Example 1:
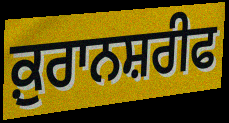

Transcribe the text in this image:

ਕ਼ੁਰਾਨਸ਼ਰੀਫ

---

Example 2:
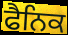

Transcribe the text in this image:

ਫੈਨਿਕ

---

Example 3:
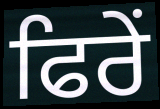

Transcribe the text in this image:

ਫਿਰੇਂ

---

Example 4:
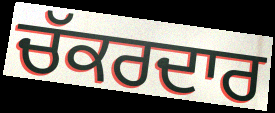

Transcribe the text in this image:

ਚੱਕਰਦਾਰ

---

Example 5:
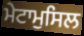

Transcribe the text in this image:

ਮੇਟਾਮੁਸਿਲ